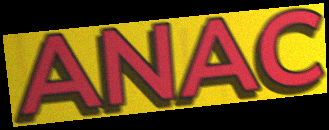
ANAC